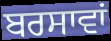
ਬਰਸਾਵਾਂ